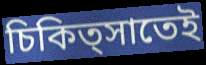
চিকিত্সাতেই